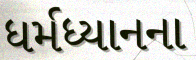
ધર્મધ્યાનના